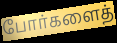
போர்களைத்